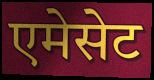
एमेसेट